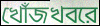
খোঁজখবরে